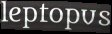
leptopus